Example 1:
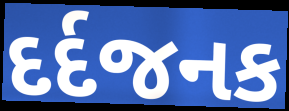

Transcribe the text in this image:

દર્દજનક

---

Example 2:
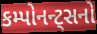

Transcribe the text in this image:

કમ્પોનન્ટ્સનો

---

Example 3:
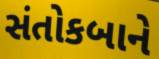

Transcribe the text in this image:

સંતોકબાને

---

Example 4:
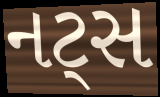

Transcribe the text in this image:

નટ્સ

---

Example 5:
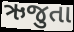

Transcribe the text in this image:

ઋજુતા